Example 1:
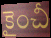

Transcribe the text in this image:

కైంచీ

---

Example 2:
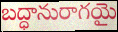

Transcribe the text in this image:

బద్ధానురాగయై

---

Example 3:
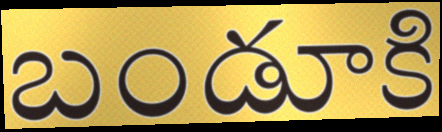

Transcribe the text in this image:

బండూకి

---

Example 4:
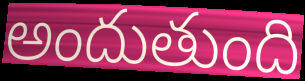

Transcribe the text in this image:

అందుతుంది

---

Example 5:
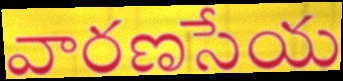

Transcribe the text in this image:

వారణసేయ